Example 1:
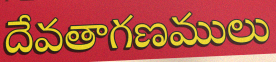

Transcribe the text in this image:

దేవతాగణములు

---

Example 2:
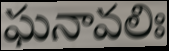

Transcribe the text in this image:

ఘనావలిః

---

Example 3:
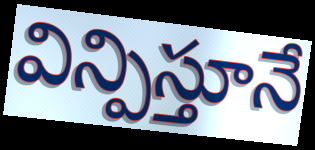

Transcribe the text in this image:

విన్పిస్తూనే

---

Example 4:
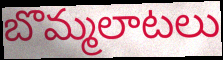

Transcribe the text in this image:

బొమ్మలాటలు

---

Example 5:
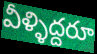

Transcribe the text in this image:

వీళ్ళిద్దరూ